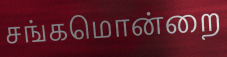
சங்கமொன்றை